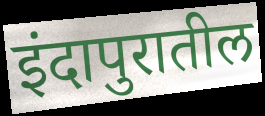
इंदापुरातील